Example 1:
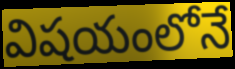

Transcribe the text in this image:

విషయంలోనే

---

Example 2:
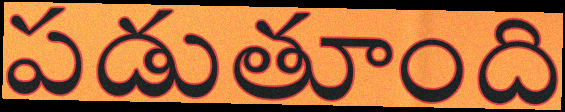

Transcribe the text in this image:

పడుతూంది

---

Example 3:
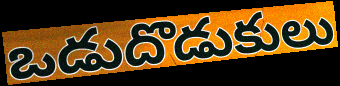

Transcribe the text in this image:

ఒడుదొడుకులు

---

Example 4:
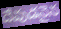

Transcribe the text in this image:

దేవుడనైన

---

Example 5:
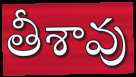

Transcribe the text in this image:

తీశావు